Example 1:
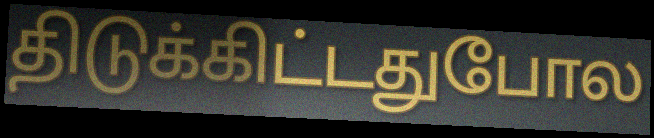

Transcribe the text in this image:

திடுக்கிட்டதுபோல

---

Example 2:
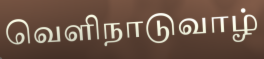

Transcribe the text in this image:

வெளிநாடுவாழ்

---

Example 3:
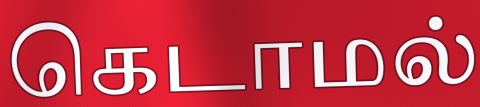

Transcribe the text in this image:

கெடாமல்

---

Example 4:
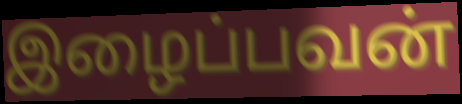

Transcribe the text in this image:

இழைப்பவன்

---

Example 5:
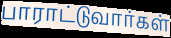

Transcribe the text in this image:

பாராட்டுவார்கள்